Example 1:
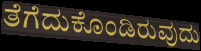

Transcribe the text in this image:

ತೆಗೆದುಕೊಂಡಿರುವುದು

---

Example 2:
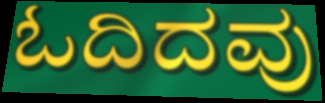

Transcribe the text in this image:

ಓದಿದವು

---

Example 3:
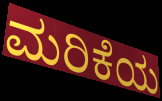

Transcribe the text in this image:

ಮರಿಕೆಯ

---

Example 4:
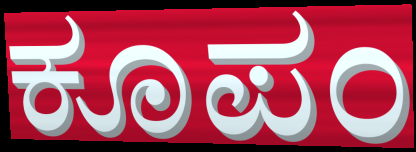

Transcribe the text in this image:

ಕೂಪಂ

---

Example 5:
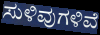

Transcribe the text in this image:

ಸುಳಿವುಗಳಿವೆ